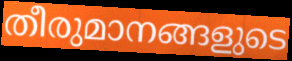
തീരുമാനങ്ങളുടെ